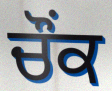
ਚੌਂਕ